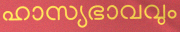
ഹാസ്യഭാവവും